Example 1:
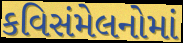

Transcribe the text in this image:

કવિસંમેલનોમાં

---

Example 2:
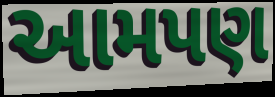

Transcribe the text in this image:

આમપણ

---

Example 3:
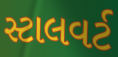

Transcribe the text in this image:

સ્ટાલવર્ટ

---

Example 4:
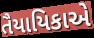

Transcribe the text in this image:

તૈયાયિકાએ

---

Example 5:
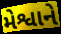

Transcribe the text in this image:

મેશ્વાને